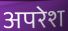
अपरेश